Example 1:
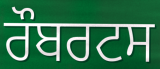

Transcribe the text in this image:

ਰੌਬਰਟਸ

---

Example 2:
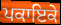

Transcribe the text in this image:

ਪਕਾਇਕੇ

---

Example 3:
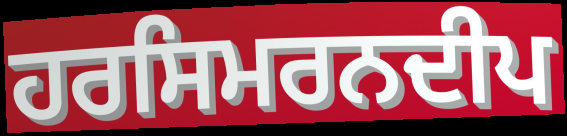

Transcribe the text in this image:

ਹਰਸਿਮਰਨਦੀਪ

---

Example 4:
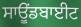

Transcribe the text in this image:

ਸਾਊਂਡਬਾਈਟ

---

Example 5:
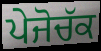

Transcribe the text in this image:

ਪੇਜੋਚੱਕ